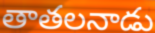
తాతలనాడు